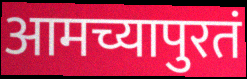
आमच्यापुरतं